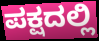
ಪಕ್ಷದಲ್ಲಿ